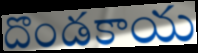
దొండకాయ